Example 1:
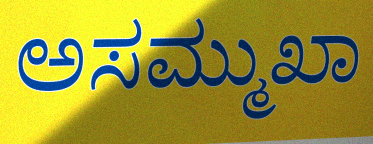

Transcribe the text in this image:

ಅಸಮ್ಮುಖಾ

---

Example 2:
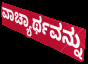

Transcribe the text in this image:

ವಾಚ್ಯಾರ್ಥವನ್ನು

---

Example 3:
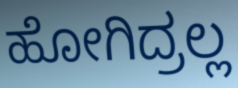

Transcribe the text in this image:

ಹೋಗಿದ್ರಲ್ಲ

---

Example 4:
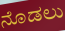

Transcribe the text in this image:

ನೊಡಲು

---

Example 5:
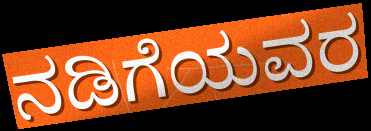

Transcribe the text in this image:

ನಡಿಗೆಯವರ